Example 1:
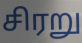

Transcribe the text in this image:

சிரறு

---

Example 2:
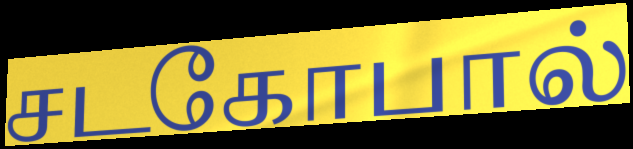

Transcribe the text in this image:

சடகோபால்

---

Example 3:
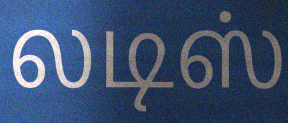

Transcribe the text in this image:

லடிஸ்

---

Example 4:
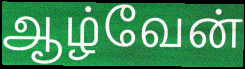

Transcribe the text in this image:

ஆழ்வேன்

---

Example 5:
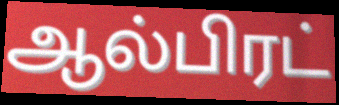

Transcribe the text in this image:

ஆல்பிரட்